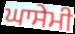
ਘਾਸੇਮੀ